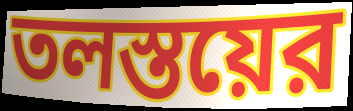
তলস্তয়ের